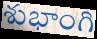
శుభాంగి